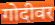
गोदीवर